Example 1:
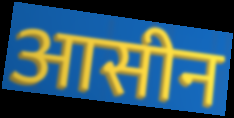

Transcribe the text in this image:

आसीन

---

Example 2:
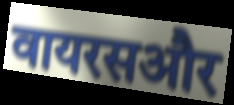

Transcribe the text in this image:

वायरसऔर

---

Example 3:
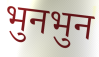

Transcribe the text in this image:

भुनभुन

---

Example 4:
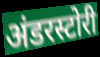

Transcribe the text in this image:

अंडरस्टोरी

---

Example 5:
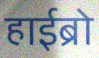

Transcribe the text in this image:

हाईब्रो